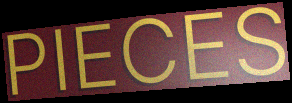
PIECES